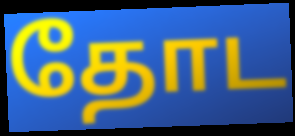
தோட